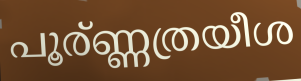
പൂര്ണ്ണത്രയീശ